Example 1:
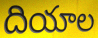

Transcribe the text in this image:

దియాల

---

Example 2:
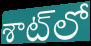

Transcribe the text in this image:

శాట్‌లో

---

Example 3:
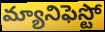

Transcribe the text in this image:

మ్యానిఫెస్టో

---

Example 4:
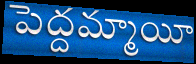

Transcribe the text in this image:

పెద్దమ్మాయీ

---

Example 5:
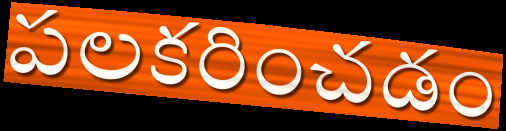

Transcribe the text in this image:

పలకరించడం